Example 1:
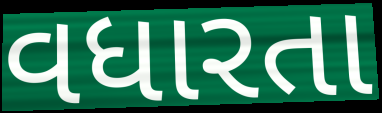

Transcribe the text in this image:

વધારતા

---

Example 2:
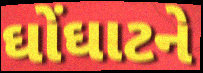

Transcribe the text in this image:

ઘોંઘાટને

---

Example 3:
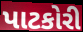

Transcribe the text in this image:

પાટકોરી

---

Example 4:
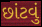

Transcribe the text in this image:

છાંટવું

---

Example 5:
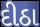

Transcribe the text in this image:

દીઠા